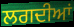
ਲਗਦੀਆਂ